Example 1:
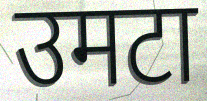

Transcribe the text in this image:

उमटा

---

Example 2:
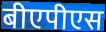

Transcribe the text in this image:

बीएपीएस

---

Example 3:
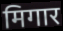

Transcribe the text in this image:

मिगार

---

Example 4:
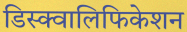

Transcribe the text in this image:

डिस्क्वालिफिकेशन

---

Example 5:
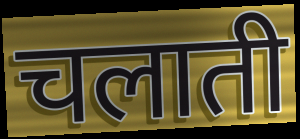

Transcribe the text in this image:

चलाती